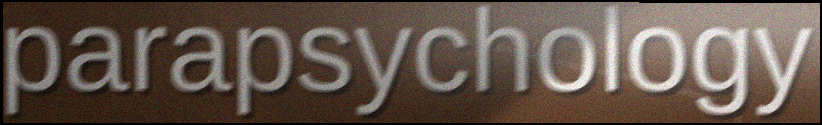
parapsychology